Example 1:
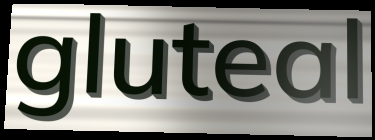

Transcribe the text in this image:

gluteal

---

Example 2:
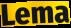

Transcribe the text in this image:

Lema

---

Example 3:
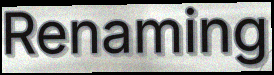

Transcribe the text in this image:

Renaming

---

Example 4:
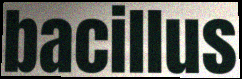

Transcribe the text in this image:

bacillus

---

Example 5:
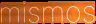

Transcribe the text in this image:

mismos